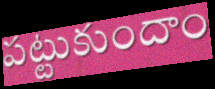
పట్టుకుందాం